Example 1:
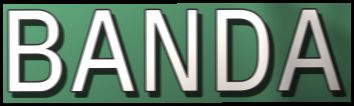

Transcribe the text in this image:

BANDA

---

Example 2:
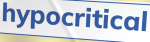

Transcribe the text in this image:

hypocritical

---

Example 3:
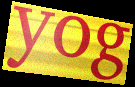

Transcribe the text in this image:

yog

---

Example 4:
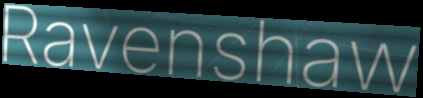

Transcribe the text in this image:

Ravenshaw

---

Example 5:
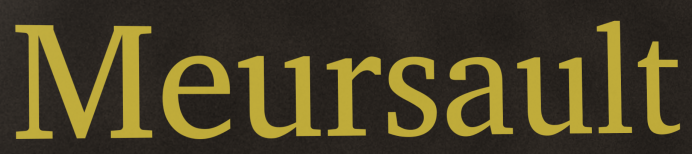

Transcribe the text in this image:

Meursault